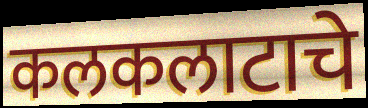
कलकलाटाचे